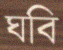
ঘবি